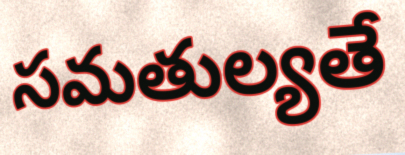
సమతుల్యతే